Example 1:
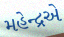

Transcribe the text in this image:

મહેન્દ્રએ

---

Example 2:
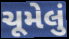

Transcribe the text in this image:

ચૂમેલું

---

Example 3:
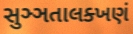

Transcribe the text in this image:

સુઞ્ઞતાલક્ખણં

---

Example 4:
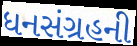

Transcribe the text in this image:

ધનસંગ્રહની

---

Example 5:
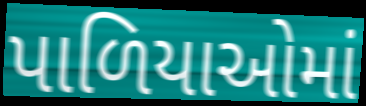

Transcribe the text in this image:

પાળિયાઓમાં